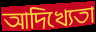
আদিখ্যেতা